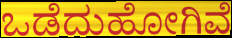
ಒಡೆದುಹೋಗಿವೆ